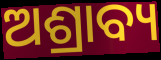
ଅଶ୍ରାବ୍ୟ